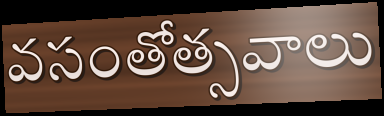
వసంతోత్సవాలు